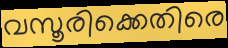
വസൂരിക്കെതിരെ